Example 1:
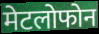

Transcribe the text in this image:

मेटलोफोन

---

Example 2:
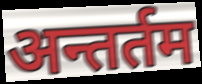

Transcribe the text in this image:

अन्तर्तम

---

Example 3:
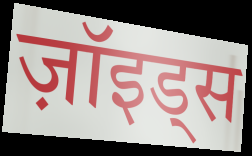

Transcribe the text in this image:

ज़ॉइड्स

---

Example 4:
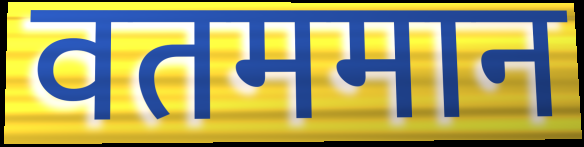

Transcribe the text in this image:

वतममान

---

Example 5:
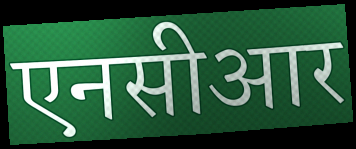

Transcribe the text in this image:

एनसीआर